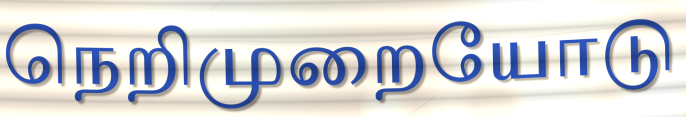
நெறிமுறையோடு